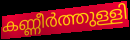
കണ്ണീർത്തുള്ളി